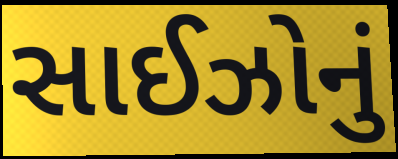
સાઈઝોનું